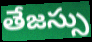
తేజస్సు